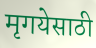
मृगयेसाठी